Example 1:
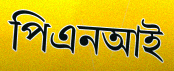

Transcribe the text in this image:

পিএনআই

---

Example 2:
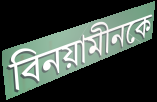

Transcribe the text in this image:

বিনয়ামীনকে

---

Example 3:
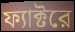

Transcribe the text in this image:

ফ্যাক্টরে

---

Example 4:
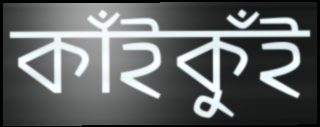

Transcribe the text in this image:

কাঁইকুঁই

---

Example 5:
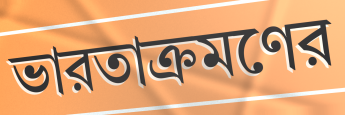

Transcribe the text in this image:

ভারতাক্রমণের